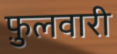
फ़ुलवारी